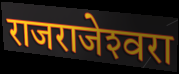
राजराजेश्वरा